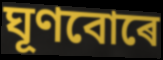
ঘূণবোৰে